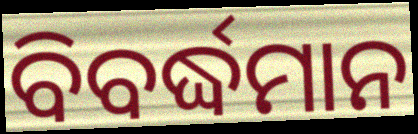
ବିବର୍ଦ୍ଧମାନ